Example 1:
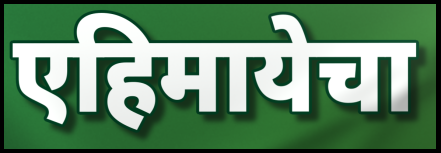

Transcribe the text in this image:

एहिमायेचा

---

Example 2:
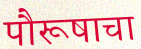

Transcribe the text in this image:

पौरूषाचा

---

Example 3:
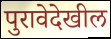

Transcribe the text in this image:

पुरावेदेखील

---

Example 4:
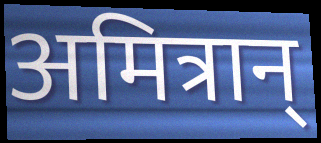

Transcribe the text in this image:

अमित्रान्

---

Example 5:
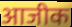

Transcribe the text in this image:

आजीक